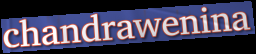
chandrawenina